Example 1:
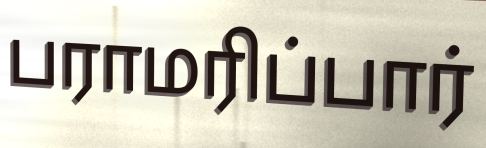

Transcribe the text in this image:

பராமரிப்பார்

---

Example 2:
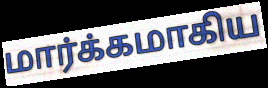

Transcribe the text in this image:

மார்க்கமாகிய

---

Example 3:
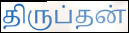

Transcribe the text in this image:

திருப்தன்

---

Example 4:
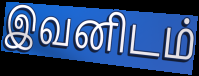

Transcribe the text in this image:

இவனிடம்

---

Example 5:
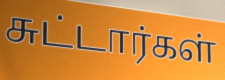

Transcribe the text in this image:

சுட்டார்கள்